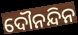
ଦୌନନ୍ଦିନ